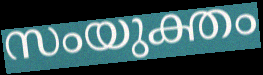
സംയുക്തം